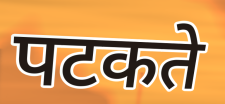
पटकते